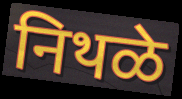
निथळे